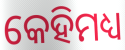
କେହିମଧ୍ୟ